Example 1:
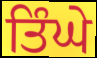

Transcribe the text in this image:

ਤਿੰਘੇ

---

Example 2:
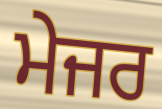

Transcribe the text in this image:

ਮੇਜਰ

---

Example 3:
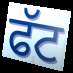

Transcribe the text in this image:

ਫੱਟ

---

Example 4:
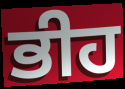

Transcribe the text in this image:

ਭੀਹ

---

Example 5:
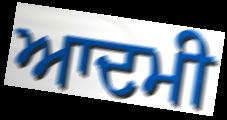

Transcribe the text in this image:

ਆਦਮੀ